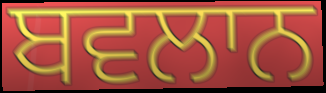
ਬਵਲਾਨ